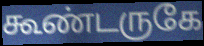
கூண்டருகே